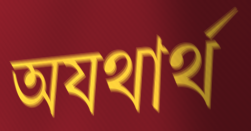
অযথার্থ